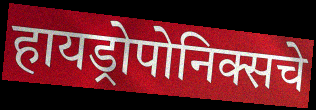
हायड्रोपोनिक्सचे